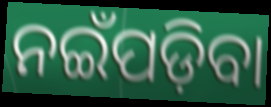
ନଇଁପଡ଼ିବା